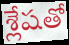
శ్లేషతో